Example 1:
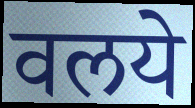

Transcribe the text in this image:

वलये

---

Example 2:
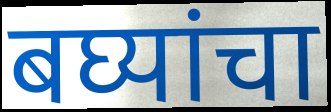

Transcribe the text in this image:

बघ्यांचा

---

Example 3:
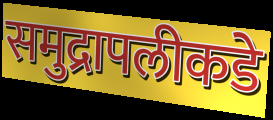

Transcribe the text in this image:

समुद्रापलीकडे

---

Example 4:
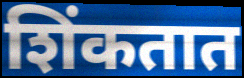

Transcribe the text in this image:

शिंकतात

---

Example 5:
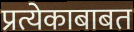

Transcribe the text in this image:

प्रत्येकाबाबत